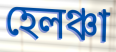
হেলঞ্চা